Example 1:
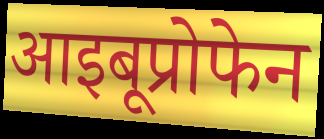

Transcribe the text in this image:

आइबूप्रोफेन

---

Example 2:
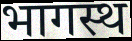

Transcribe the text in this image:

भागस्थ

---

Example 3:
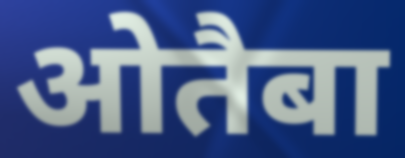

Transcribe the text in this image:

ओतैबा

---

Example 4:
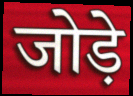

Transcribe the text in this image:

जोड़े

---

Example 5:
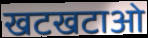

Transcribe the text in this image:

खटखटाओ